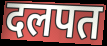
दलपत